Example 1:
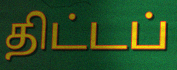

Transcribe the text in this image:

திட்டப்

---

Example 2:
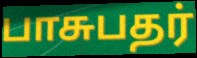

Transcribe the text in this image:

பாசுபதர்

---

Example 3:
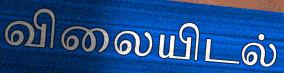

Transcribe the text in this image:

விலையிடல்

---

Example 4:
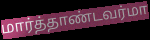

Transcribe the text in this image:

மார்த்தாண்டவர்மா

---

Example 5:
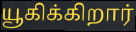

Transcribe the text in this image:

யூகிக்கிறார்